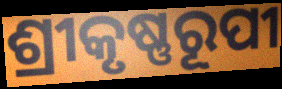
ଶ୍ରୀକୃଷ୍ଣରୂପୀ